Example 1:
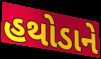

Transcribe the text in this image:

હથોડાને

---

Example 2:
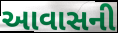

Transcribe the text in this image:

આવાસની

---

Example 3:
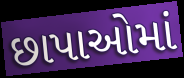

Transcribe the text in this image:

છાપાઓમાં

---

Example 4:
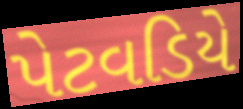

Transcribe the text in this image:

પેટવડિયે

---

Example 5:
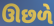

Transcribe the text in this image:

ઊછળે